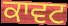
ਕਾਵਟ